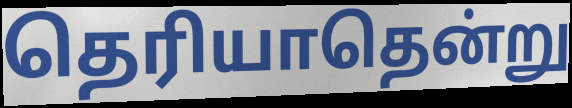
தெரியாதென்று